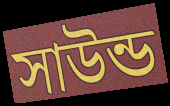
সাউন্ড